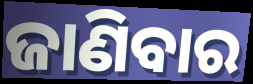
ଜାଣିବାର